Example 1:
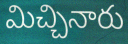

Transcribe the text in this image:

మిచ్చినారు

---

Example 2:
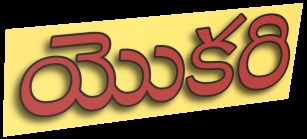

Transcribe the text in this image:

యొకరి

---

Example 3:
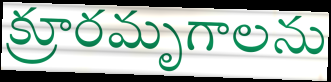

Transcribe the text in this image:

క్రూరమృగాలను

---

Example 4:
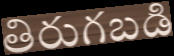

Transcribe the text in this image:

తిరుగబడి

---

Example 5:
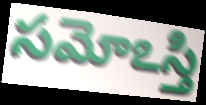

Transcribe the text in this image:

సమోఽస్తి